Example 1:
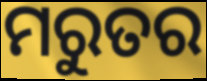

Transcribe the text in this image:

ମରୁତର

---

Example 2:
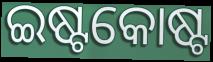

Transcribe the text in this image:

ଇଷ୍ଟକୋଷ୍ଟ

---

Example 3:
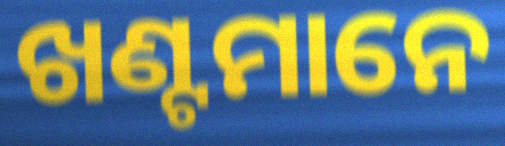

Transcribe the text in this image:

ଖଣ୍ଟମାନେ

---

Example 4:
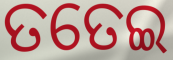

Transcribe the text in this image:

ତତେଇ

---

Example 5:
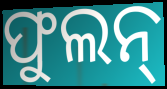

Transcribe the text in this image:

ଫୁଲନ୍